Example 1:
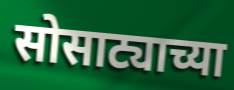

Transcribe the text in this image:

सोसाट्याच्या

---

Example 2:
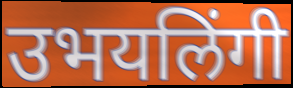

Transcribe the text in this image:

उभयलिंगी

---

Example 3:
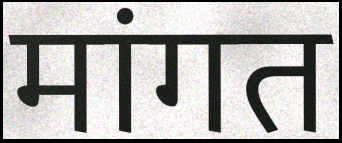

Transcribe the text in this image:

मांगत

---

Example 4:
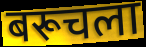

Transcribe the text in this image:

बरूचला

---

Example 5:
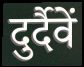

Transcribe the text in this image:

दुर्दैवें